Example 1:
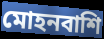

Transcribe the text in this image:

মোহনবাশি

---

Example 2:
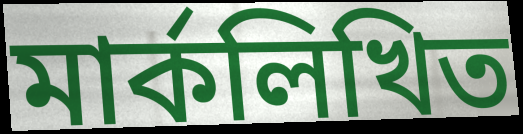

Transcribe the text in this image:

মার্কলিখিত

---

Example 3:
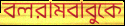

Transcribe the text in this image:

বলরামবাবুকে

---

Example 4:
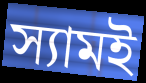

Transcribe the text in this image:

স্যামই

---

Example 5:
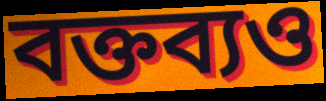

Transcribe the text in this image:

বক্তব্যও